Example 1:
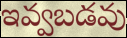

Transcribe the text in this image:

ఇవ్వబడవు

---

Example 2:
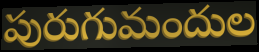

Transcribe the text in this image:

పురుగుమందుల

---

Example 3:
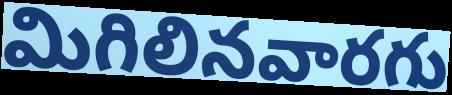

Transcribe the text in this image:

మిగిలినవారగు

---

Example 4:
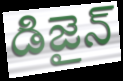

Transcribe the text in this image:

డిజైన్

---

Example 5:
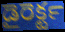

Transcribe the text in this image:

డైరెక్టర్‍